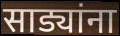
साड्यांना